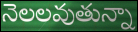
నెలలవుతున్నా